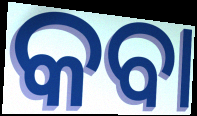
କବା